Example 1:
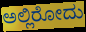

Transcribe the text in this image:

ಅಲ್ಲಿರೋದು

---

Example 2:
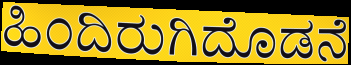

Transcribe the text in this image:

ಹಿಂದಿರುಗಿದೊಡನೆ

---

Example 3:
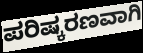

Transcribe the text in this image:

ಪರಿಷ್ಕರಣವಾಗಿ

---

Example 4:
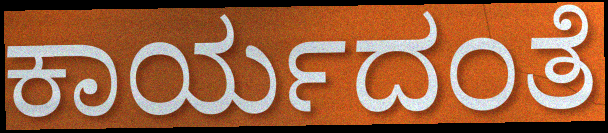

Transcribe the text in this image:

ಕಾರ್ಯದಂತೆ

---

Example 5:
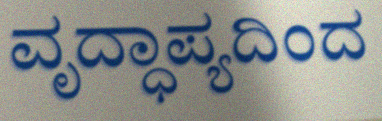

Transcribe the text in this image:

ವೃದ್ಧಾಪ್ಯದಿಂದ